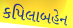
કપિલાબહેન